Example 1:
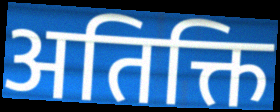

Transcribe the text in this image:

अतिक्ति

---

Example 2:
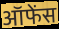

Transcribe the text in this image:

ऑफेंस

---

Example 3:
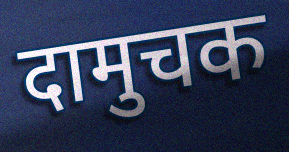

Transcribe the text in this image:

दामुचक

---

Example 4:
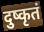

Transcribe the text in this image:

दुष्कृतं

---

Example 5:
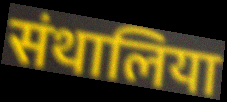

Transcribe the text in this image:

संथालिया